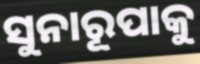
ସୁନାରୂପାକୁ